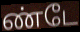
ண்டே